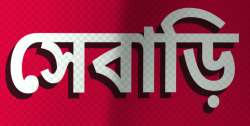
সেবাড়ি